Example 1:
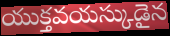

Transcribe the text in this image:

యుక్తవయస్కుడైన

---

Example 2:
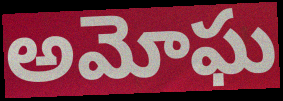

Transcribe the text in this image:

అమోఘ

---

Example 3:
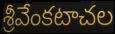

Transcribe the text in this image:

శ్రీవేంకటాచల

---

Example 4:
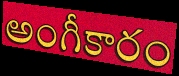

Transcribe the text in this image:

అంగీకారం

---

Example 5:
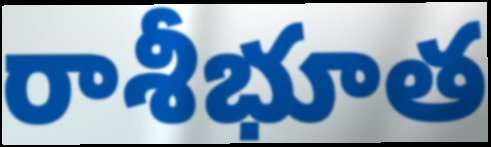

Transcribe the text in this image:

రాశీభూత